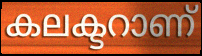
കലക്ടറാണ്